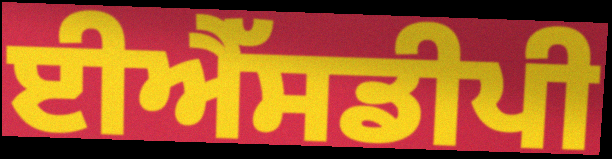
ਈਐੱਸਡੀਪੀ